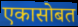
एकासोबत